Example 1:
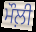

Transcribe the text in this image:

ਮੌਲ਼ੀ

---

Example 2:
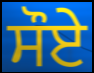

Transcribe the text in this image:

ਸੌਏ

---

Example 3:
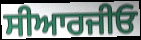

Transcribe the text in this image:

ਸੀਆਰਜੀਓ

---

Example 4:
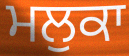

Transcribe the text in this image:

ਮਲੁਕਾ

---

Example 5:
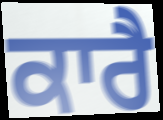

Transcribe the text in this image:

ਕਾਰੈ